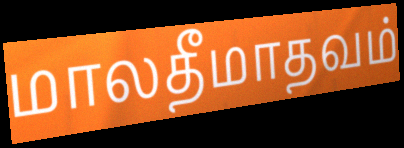
மாலதீமாதவம்